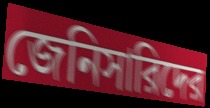
জেনিসারিদের